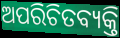
ଅପରିଚିତବ୍ୟକ୍ତି